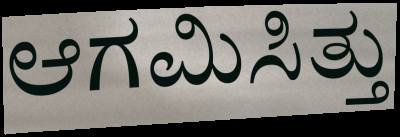
ಆಗಮಿಸಿತ್ತು